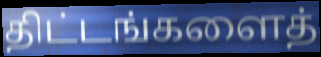
திட்டங்களைத்